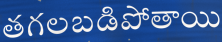
తగలబడిపోతాయి